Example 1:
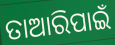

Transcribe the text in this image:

ତାଆରିପାଇଁ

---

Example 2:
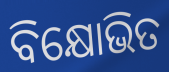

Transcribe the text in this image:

ବିକ୍ଷୋଭିତ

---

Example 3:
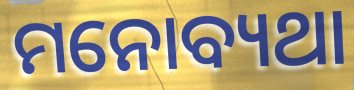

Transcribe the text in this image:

ମନୋବ୍ୟଥା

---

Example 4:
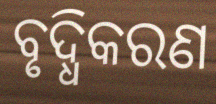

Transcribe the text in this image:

ବୃଦ୍ଧିକରଣ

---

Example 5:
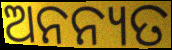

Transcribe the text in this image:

ଅନନ୍ୟତ